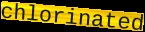
chlorinated